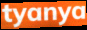
tyanya